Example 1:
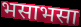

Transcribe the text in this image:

भसाभसा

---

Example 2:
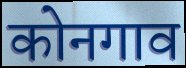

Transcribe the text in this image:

कोनगाव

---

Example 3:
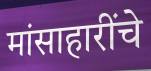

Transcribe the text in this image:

मांसाहारींचे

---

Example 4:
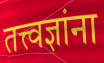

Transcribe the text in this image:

तत्त्वज्ञांना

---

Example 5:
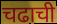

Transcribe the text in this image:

चढाची